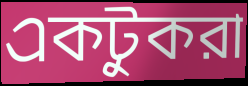
একটুকরা